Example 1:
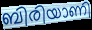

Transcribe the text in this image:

ബിരിയാണി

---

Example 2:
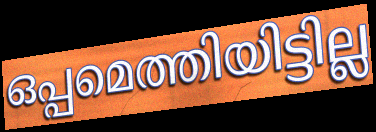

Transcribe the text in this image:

ഒപ്പമെത്തിയിട്ടില്ല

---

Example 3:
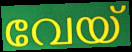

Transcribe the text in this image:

വേയ്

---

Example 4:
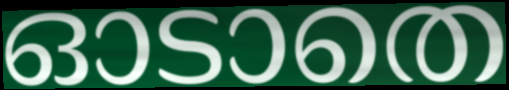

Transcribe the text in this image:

ഓടാതെ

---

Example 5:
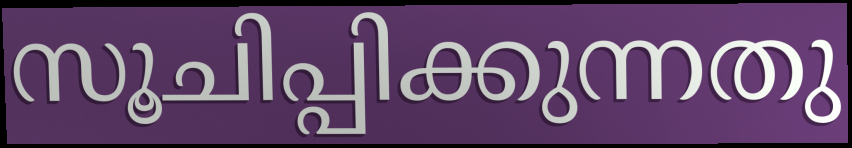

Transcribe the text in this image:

സൂചിപ്പിക്കുന്നതു